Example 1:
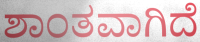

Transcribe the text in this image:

ಶಾಂತವಾಗಿದೆ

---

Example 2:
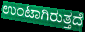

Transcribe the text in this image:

ಉಂಟಾಗಿರುತ್ತದೆ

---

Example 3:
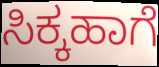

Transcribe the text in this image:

ಸಿಕ್ಕಹಾಗೆ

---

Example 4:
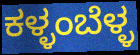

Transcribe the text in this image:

ಕಳ್ಳಂಬೆಳ್ಳ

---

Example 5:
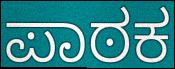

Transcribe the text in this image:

ಪಾಠಕ